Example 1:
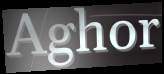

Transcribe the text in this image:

Aghor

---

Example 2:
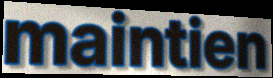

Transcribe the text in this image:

maintien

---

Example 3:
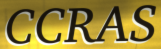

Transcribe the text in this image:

CCRAS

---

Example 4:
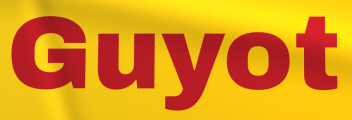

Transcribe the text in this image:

Guyot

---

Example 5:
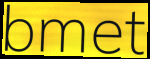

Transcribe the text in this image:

bmet